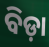
ବିଡ଼ା